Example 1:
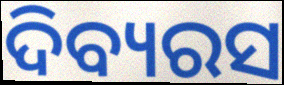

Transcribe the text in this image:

ଦିବ୍ୟରସ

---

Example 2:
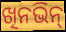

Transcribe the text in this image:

ଖିନଭିନ୍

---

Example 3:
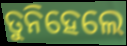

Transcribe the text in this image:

ତୁନିହେଲେ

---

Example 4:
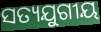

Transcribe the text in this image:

ସତ୍ୟଯୁଗୀୟ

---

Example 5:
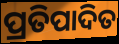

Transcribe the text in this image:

ପ୍ରତିପାଦିତ